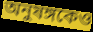
অনুষঙ্গকেও